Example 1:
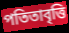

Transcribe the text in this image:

পতিতাবৃত্তি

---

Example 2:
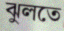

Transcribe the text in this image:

ঝুলতে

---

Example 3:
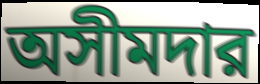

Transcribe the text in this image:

অসীমদার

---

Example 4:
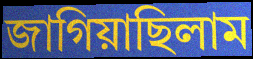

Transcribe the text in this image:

জাগিয়াছিলাম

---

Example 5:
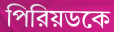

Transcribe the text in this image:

পিরিয়ডকে